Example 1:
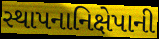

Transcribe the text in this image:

સ્થાપનાનિક્ષેપાની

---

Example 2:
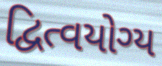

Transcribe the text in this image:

દ્વિત્વયોગ્ય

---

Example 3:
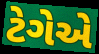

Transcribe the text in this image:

ટેગેએ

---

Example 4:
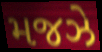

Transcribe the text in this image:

મજઝે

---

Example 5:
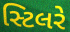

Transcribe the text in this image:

સ્ટિલરે